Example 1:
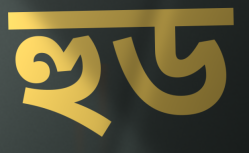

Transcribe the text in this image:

হুড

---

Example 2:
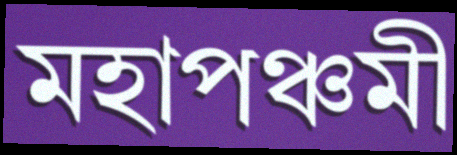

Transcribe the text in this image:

মহাপঞ্চমী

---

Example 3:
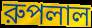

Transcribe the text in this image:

রুপলাল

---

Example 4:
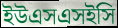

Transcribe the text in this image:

ইউএসএসইসি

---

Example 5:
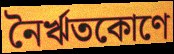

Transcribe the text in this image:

নৈর্ঋতকোণে